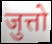
जुत्तो